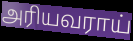
அரியவராய்